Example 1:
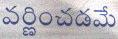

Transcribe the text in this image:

వర్ణించడమే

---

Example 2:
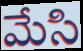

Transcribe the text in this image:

మేసి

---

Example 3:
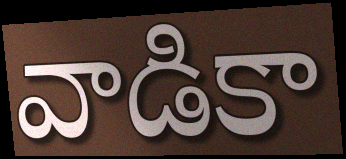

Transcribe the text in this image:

వాడికా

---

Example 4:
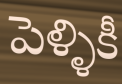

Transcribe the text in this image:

పెళ్ళికీ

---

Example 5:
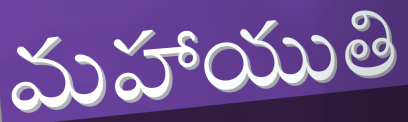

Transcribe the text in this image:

మహాయుతి